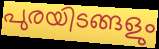
പുരയിടങ്ങളും